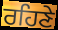
ਰਹਿਣੇ